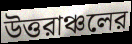
উত্তরাঞ্চলের